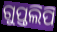
ଗୁପ୍ତଲିପି